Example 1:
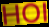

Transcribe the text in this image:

HOI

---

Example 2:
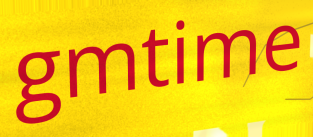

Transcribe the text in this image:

gmtime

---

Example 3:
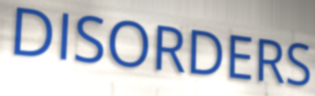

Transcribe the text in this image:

DISORDERS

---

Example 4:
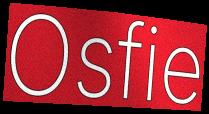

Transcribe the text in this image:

Osfie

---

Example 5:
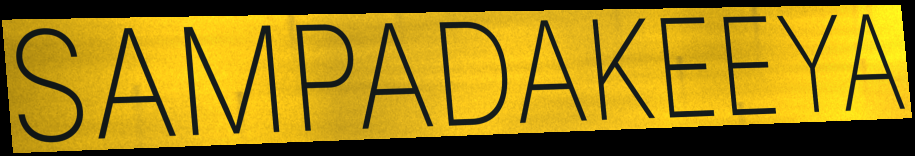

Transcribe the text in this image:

SAMPADAKEEYA